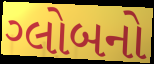
ગ્લોબનો